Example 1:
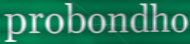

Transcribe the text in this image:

probondho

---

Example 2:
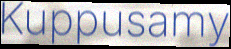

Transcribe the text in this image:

Kuppusamy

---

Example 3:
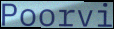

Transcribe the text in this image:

Poorvi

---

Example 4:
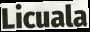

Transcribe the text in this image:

Licuala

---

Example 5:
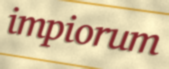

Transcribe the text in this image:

impiorum